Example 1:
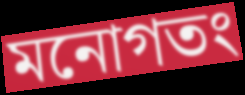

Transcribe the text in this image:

মনোগতং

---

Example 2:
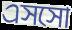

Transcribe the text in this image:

এসসো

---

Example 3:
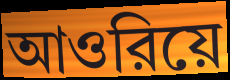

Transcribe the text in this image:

আওরিয়ে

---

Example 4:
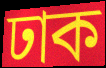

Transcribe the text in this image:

ঢাক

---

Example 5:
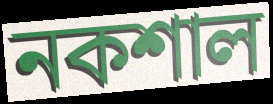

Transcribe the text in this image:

নকশাল